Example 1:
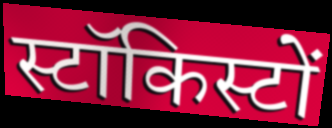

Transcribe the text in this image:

स्टॉकिस्टों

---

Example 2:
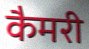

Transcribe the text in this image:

कैमरी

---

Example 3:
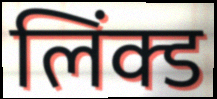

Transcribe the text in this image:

लिंक्ड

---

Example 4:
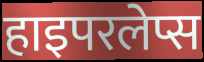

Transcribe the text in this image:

हाइपरलेप्स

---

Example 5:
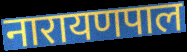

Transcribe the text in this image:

नारायणपाल